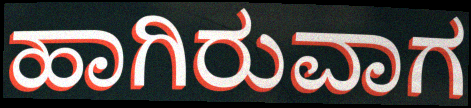
ಹಾಗಿರುವಾಗ